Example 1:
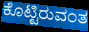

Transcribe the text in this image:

ಕೊಟ್ಟಿರುವಂತ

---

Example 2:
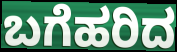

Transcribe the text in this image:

ಬಗೆಹರಿದ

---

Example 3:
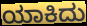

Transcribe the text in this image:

ಯಾಕಿದು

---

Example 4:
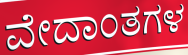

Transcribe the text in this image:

ವೇದಾಂತಗಳ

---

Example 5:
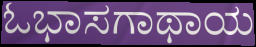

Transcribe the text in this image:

ಓಭಾಸಗಾಥಾಯ